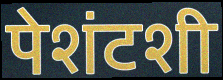
पेशंटशी